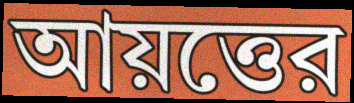
আয়ত্তের